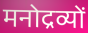
मनोद्रव्यों